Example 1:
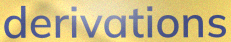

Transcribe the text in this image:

derivations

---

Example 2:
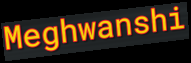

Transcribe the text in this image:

Meghwanshi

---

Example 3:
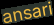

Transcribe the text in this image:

ansari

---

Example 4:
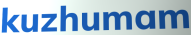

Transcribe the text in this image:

kuzhumam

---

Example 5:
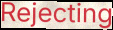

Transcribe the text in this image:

Rejecting